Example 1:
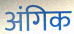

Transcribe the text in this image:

अंगिक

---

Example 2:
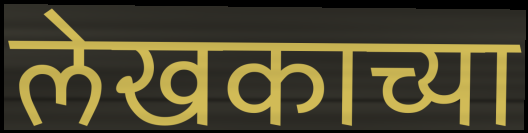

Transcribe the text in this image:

लेखकाच्या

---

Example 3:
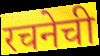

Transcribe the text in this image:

रचनेची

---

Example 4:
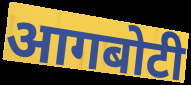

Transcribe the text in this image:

आगबोटी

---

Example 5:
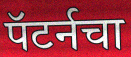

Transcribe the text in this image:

पॅटर्नचा